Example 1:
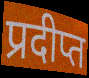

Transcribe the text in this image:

प्रदीप्त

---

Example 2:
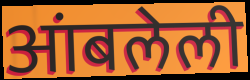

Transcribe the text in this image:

आंबलेली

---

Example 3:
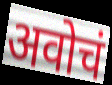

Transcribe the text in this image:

अवोचं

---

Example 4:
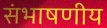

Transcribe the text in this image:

संभाषणीय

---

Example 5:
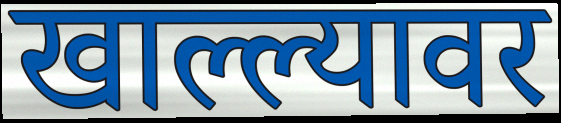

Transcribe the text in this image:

खाल्ल्यावर